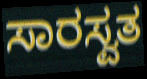
ಸಾರಸ್ವತ